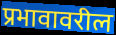
प्रभावावरील